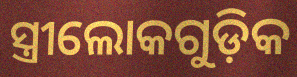
ସ୍ତ୍ରୀଲୋକଗୁଡ଼ିକ